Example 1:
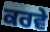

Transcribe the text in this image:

ਕਰਵੇ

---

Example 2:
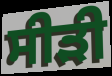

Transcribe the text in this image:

ਸੀੜੀ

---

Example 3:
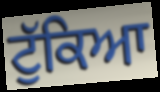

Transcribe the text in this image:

ਟੁੱਕਿਆ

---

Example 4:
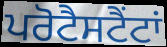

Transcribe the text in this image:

ਪਰੋਟੈਸਟੈਂਟਾਂ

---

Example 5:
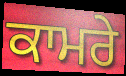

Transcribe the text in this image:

ਕਾਮਰੇ